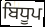
ਬਿਧੂਪ